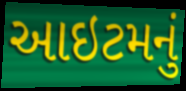
આઇટમનું